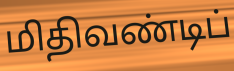
மிதிவண்டிப்